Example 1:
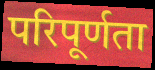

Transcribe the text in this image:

परिपूर्णता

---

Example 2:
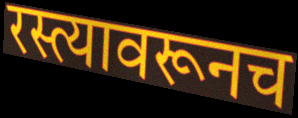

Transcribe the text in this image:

रस्त्यावरूनच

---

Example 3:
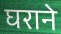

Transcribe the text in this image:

घराने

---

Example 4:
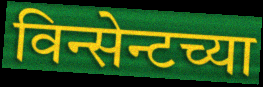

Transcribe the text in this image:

विन्सेन्टच्या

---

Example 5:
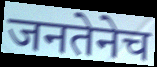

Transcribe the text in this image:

जनतेनेच